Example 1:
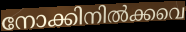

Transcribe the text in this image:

നോക്കിനിൽക്കവെ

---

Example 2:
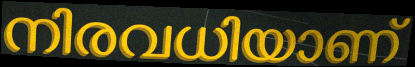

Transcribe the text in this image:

നിരവധിയാണ്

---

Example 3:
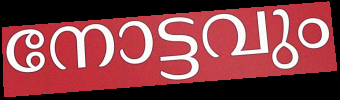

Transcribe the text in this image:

നോട്ടവും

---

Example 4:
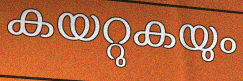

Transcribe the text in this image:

കയറ്റുകയും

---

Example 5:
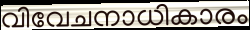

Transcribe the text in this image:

വിവേചനാധികാരം